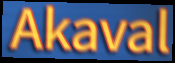
Akaval